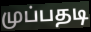
முப்பதடி